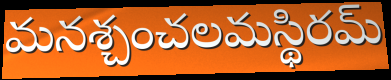
మనశ్చంచలమస్థిరమ్